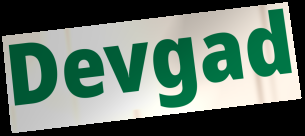
Devgad